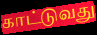
காட்டுவது